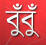
বুঁবুঁ